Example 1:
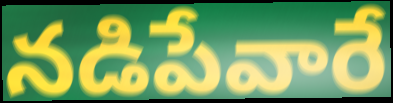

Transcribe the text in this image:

నడిపేవారే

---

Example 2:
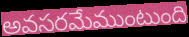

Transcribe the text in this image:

అవసరమేముంటుంది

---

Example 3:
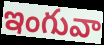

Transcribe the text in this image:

ఇంగువా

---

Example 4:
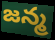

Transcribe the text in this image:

జన్మ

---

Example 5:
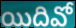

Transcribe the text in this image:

యిదివో